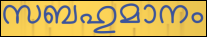
സബഹുമാനം